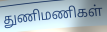
துணிமணிகள்